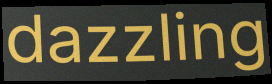
dazzling